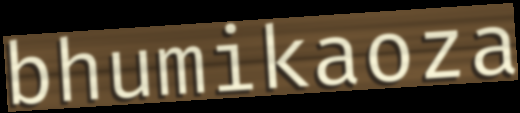
bhumikaoza